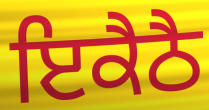
ਇਕੈਠੈ